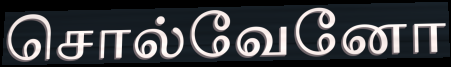
சொல்வேனோ